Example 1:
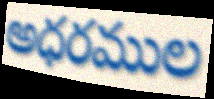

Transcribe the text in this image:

అధరముల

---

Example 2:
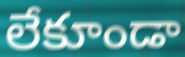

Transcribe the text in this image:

లేకూండా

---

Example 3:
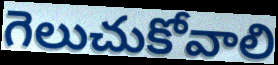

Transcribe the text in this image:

గెలుచుకోవాలి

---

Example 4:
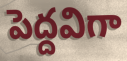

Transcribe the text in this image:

పెద్దవిగా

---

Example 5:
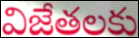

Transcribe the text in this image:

విజేతలకు